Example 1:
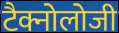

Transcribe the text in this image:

टैक्नोलोजी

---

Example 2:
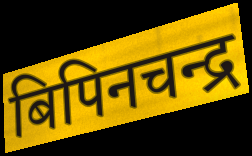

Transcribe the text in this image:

बिपिनचन्द्र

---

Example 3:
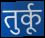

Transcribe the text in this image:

तुर्कू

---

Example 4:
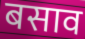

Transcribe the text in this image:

बसाव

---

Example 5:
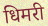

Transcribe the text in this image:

धिमरी